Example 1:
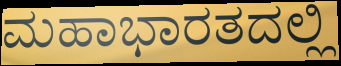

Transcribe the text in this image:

ಮಹಾಭಾರತದಲ್ಲಿ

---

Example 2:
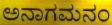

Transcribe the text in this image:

ಅನಾಗಮನಂ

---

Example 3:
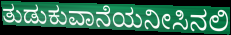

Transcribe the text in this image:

ತುಡುಕುವಾನೆಯನೀಸಿನಲಿ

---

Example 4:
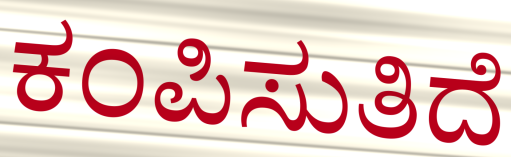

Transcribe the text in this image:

ಕಂಪಿಸುತಿದೆ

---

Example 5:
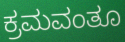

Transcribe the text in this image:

ಕ್ರಮವಂತೂ